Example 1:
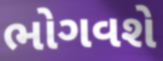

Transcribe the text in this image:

ભોગવશે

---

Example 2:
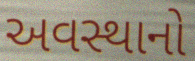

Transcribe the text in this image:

અવસ્થાનો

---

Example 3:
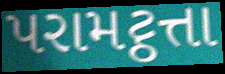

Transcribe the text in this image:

પરામટ્ઠત્તા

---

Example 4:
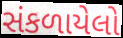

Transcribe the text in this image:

સંકળાયેલો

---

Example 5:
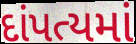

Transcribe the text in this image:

દાંપત્યમાં